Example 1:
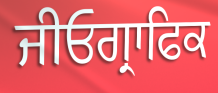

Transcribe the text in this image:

ਜੀਓਗ੍ਰਾਫਿਕ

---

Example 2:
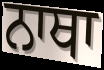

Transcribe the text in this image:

ਨਾਥਾ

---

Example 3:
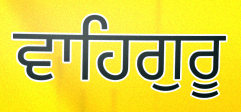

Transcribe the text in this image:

ਵਾਹਿਗੁਰੂ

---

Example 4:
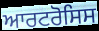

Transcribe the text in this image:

ਆਰਟਰੋਸਿਸ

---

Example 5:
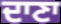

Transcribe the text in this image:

ਦਾਣਾ